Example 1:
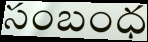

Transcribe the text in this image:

సంబంధ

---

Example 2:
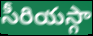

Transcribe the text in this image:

సీరియస్గా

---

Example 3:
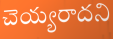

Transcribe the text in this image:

చెయ్యరాదని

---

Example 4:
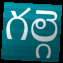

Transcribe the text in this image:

గల్గె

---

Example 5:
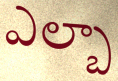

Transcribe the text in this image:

ఎల్బా